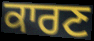
ਕਾਰਣ